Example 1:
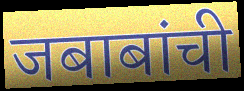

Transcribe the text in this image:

जबाबांची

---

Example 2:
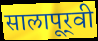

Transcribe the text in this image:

सालापूर्वी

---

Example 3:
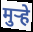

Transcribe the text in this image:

मुऱ्हे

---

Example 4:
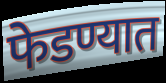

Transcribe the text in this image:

फेडण्यात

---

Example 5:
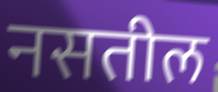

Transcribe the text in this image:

नसतील